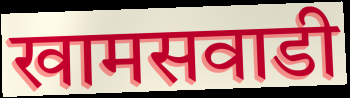
खामसवाडी